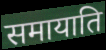
समायाति